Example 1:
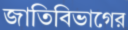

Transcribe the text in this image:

জাতিবিভাগের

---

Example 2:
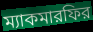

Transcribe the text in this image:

ম্যাকমারফির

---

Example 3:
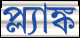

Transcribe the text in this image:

প্ল্যাঙ্ক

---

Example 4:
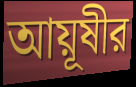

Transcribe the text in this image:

আয়ূষীর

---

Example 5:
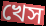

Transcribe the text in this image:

খেস